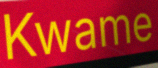
Kwame